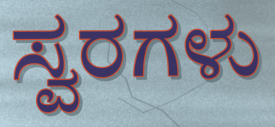
ಸ್ವರಗಳು